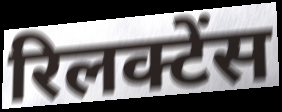
रिलक्टेंस